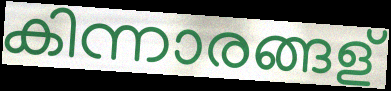
കിന്നാരങ്ങള്